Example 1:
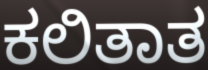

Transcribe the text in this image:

ಕಲಿತಾತ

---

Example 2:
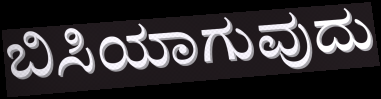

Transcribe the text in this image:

ಬಿಸಿಯಾಗುವುದು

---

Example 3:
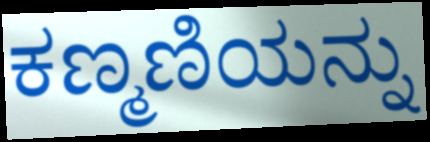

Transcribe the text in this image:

ಕಣ್ಮಣಿಯನ್ನು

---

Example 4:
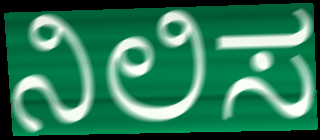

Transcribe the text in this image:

ನಿಲಿಸ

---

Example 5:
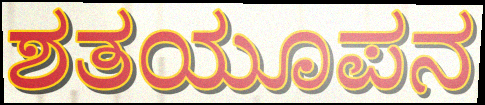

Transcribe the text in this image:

ಶತಯೂಪನ